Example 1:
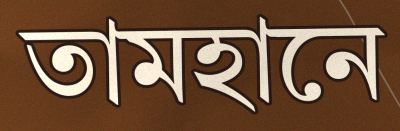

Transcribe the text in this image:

তামহানে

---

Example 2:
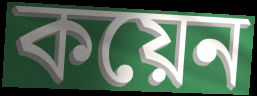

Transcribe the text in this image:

কয়েন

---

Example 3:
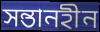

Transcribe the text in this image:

সন্তানহীন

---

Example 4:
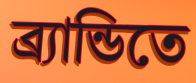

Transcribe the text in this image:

ব্র্যান্ডিতে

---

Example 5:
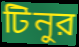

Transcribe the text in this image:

টিনুর